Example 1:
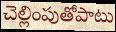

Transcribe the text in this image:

చెల్లింపుతోపాటు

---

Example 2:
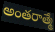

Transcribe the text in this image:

అంతరాత్మే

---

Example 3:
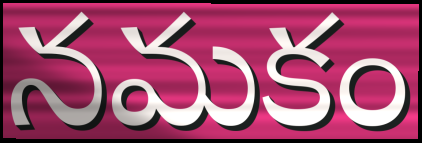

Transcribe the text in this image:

నమకం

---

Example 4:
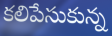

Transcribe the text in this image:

కలిపేసుకున్న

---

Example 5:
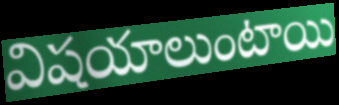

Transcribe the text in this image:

విషయాలుంటాయి